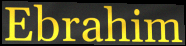
Ebrahim